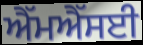
ਐੱਮਐੱਸਈ